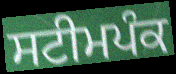
ਸਟੀਮਪੰਕ